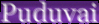
Puduvai